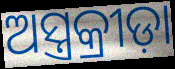
ଅସ୍ତ୍ରକ୍ରୀଡ଼ା